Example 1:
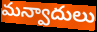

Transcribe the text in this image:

మన్వాదులు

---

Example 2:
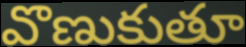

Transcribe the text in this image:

వొణుకుతూ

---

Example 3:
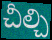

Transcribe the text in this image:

చీల్చి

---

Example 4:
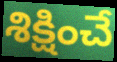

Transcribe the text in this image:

శిక్షించే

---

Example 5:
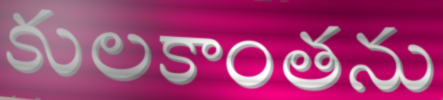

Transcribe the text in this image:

కులకాంతను